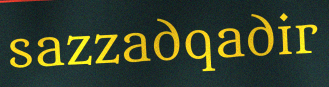
sazzadqadir